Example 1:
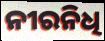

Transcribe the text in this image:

ନୀରନିଧି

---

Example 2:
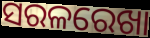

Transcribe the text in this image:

ସରଳରେଖା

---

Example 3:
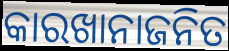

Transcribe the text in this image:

କାରଖାନାଜନିତ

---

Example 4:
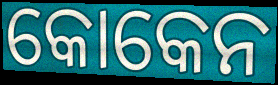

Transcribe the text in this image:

କୋକେନ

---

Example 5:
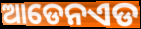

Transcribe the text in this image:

ଆଡେନଏଡ